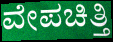
ವೇಪಚಿತ್ತಿ